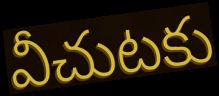
వీచుటకు